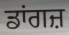
ਡਾਂਗਜ਼